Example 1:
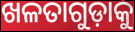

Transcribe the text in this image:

ଖଳତାଗୁଡ଼ାକୁ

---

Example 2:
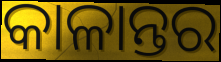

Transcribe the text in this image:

କାଳାନ୍ତର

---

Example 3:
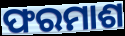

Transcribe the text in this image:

ଫରମାଶ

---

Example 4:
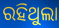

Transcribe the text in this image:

ରହିଥୁଲା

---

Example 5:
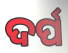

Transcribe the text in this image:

ଦର୍ପ